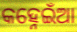
କହ୍ନେଇଁଆ